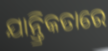
ଯାନ୍ତ୍ରିକତାରେ